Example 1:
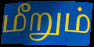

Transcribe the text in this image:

மீறும்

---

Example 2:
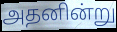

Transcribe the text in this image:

அதனின்று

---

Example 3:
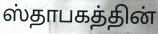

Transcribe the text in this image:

ஸ்தாபகத்தின்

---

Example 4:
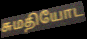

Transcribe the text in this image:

சுமதியோட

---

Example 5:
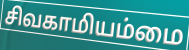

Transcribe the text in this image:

சிவகாமியம்மை